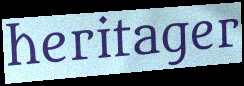
heritager